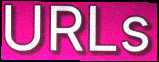
URLs